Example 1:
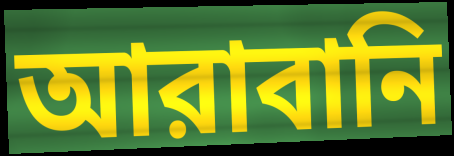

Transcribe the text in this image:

আরাবানি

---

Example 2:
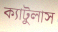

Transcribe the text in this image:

ক্যাটুলাস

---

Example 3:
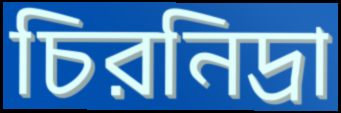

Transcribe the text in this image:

চিরনিদ্রা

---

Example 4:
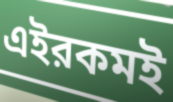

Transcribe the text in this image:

এইরকমই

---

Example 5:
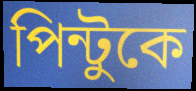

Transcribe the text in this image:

পিন্টুকে